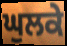
ਘੁਲਕੇ